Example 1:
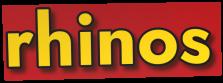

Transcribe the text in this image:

rhinos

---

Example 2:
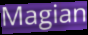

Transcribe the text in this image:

Magian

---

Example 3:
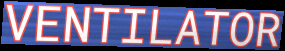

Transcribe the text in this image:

VENTILATOR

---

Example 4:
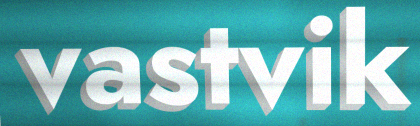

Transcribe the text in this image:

vastvik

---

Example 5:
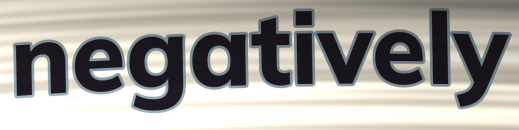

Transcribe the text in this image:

negatively